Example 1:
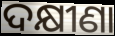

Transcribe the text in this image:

ଦକ୍ଷୀଣା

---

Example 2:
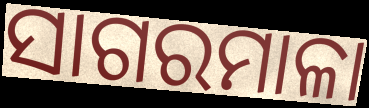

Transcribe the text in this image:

ସାଗରମାଳା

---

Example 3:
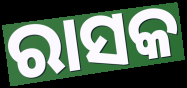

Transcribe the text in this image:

ରାସକ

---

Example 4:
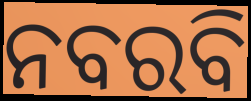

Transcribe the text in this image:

ନବରବି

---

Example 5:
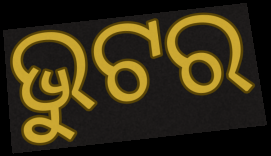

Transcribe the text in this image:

ଭୁଟର